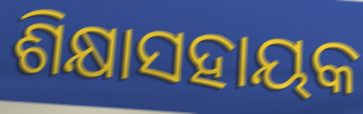
ଶିକ୍ଷାସହାୟକ